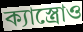
ক্যাস্ত্রোও